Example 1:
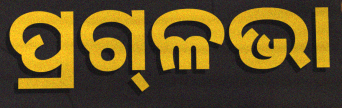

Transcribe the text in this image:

ପ୍ରଗ୍‌ଳଭା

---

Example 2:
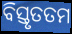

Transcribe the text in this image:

ବିସ୍ତୃତତମ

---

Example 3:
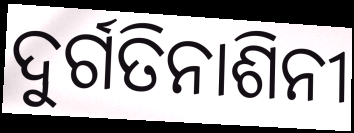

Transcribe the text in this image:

ଦୁର୍ଗତିନାଶିନୀ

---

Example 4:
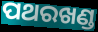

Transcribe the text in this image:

ପଥରଖଣ୍ଡ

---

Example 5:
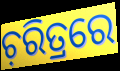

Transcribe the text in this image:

ଚ଼ରିତ୍ରରେ